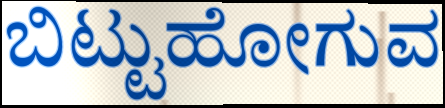
ಬಿಟ್ಟುಹೋಗುವ